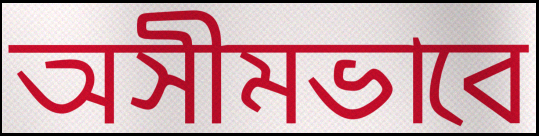
অসীমভাবে